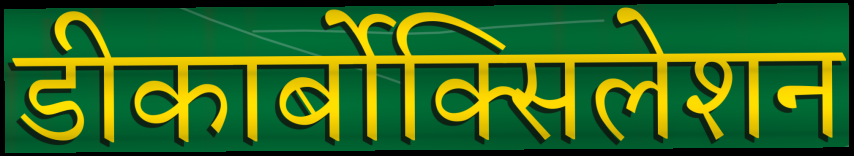
डीकार्बोक्सिलेशन